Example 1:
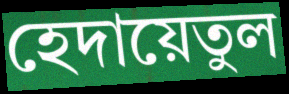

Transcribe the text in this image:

হেদায়েতুল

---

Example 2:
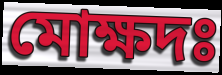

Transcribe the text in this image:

মোক্ষদঃ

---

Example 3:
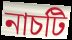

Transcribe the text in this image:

নাচটি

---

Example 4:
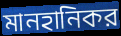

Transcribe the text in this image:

মানহানিকর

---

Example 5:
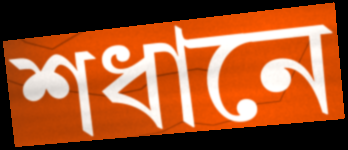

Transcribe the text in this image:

শধানে